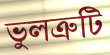
ভুলত্রুটি